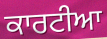
ਕਾਰਟੀਆ